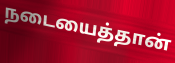
நடையைத்தான்